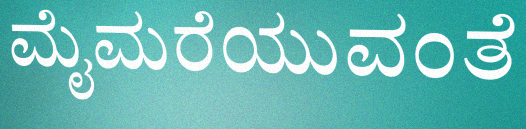
ಮೈಮರೆಯುವಂತೆ